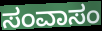
ಸಂವಾಸಂ